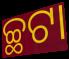
ଚ୍ଛଟା